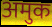
अमुक